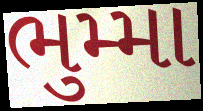
ભુમ્મા